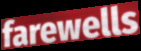
farewells